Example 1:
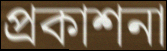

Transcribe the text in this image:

প্ৰকাশনা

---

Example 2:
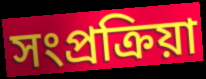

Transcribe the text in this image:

সংপ্ৰক্ৰিয়া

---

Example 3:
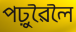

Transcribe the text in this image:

পঢ়ুৱৈলৈ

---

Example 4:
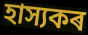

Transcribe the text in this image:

হাস্যকৰ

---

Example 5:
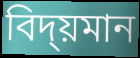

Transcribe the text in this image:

বিদ্য়মান